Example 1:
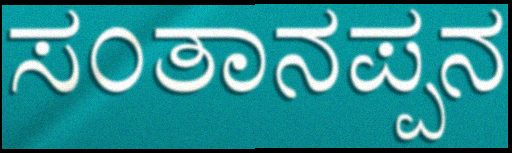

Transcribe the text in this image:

ಸಂತಾನಪ್ಪನ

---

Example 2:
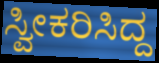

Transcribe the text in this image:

ಸ್ವೀಕರಿಸಿದ್ದ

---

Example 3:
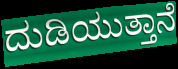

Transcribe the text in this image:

ದುಡಿಯುತ್ತಾನೆ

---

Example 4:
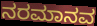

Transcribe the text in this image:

ನರಮಾನವ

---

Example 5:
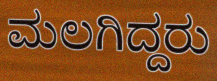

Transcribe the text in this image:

ಮಲಗಿದ್ದರು